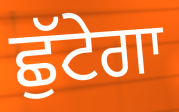
ਛੁੱਟੇਗਾ